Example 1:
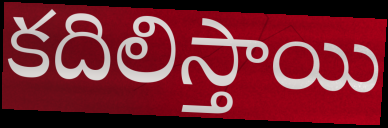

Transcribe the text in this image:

కదిలిస్తాయి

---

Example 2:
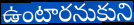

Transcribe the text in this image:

ఉంటారనుకుని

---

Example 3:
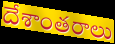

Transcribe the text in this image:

దేశాంతరాలు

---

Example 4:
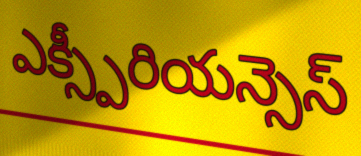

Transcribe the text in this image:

ఎక్స్పీరియన్సెస్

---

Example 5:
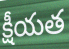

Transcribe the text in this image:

క్షీయత